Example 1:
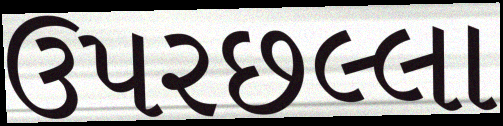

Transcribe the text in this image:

ઉપરછલ્લા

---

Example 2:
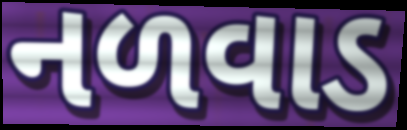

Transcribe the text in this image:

નળવાડ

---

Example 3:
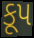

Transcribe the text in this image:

કૂપ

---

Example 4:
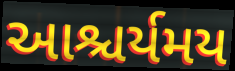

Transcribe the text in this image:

આશ્ચર્યમય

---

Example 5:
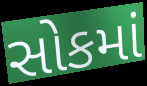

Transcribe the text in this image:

સોકમાં